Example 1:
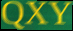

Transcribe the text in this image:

QXY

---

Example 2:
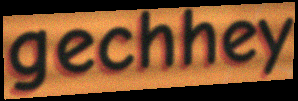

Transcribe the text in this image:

gechhey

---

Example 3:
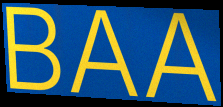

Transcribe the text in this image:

BAA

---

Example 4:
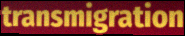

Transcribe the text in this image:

transmigration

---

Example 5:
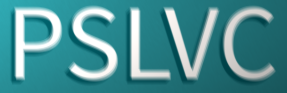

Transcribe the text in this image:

PSLVC